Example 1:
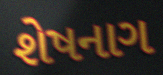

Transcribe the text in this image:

શેષનાગ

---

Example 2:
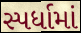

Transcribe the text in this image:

સ્પર્ધામાં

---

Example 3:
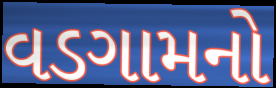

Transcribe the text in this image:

વડગામનો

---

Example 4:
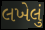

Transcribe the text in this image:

લખેલું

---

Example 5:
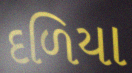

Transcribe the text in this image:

દળિયા